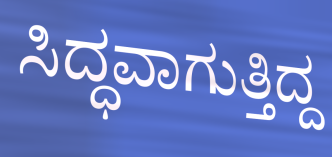
ಸಿದ್ಧವಾಗುತ್ತಿದ್ದ